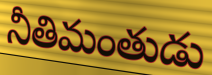
నీతిమంతుడు